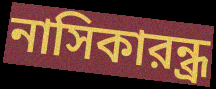
নাসিকারন্ধ্র